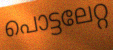
പൊട്ടലേറ്റ